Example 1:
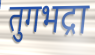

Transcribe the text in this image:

तुगभद्रा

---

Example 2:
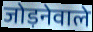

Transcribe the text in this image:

जोड़नेवाले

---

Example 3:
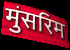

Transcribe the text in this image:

मुंसरिम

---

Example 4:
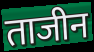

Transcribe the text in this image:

ताजीन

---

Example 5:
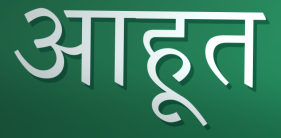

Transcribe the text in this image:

आहूत